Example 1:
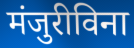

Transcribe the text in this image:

मंजुरीविना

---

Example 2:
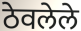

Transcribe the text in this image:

ठेवलेले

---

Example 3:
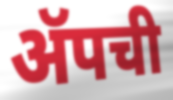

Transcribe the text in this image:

ॲपची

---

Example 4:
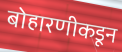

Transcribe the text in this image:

बोहारणीकडून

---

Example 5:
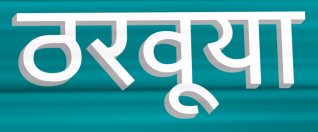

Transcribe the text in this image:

ठरवूया